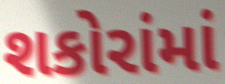
શકોરાંમાં